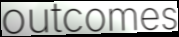
outcomes